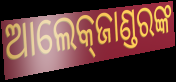
ଆଲେକ୍‌ଜାଣ୍ଡରଙ୍କ